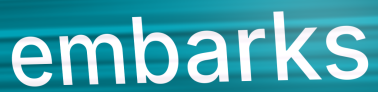
embarks